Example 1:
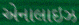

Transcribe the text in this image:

એનાલાઇઝ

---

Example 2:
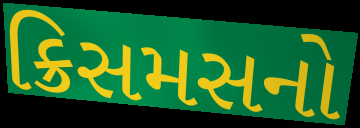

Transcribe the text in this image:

ક્રિસમસનો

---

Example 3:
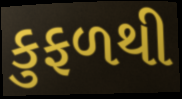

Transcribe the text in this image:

કુફળથી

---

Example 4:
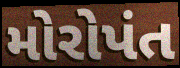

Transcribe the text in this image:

મોરોપંત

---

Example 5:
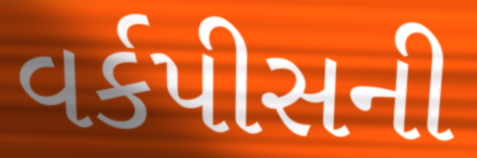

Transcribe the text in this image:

વર્કપીસની